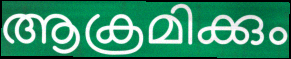
ആക്രമിക്കും